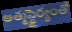
ఆత్మస్థైర్యంతో